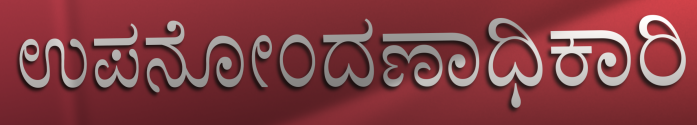
ಉಪನೋಂದಣಾಧಿಕಾರಿ